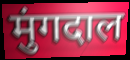
मुंगदाल